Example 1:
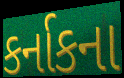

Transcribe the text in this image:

કર્નાકના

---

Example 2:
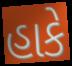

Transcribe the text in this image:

હાકે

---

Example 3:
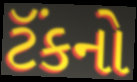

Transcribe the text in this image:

ટૅંકનો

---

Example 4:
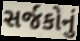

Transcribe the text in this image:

સર્જકોનું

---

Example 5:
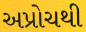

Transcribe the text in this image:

અપ્રોચથી